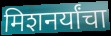
मिशनर्यांचा